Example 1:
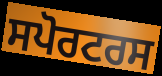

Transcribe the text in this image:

ਸਪੋਰਟਰਸ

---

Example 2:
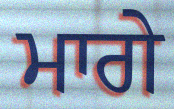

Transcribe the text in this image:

ਮਾਗੇ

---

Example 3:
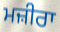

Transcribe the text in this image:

ਮਜ਼ੀਰਾ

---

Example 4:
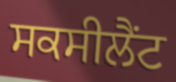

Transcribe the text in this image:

ਸਕਸੀਲੈਂਟ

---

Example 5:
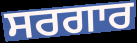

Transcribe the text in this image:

ਸਰਗਾਰ